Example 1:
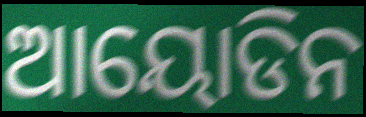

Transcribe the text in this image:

ଆୟୋଡିନ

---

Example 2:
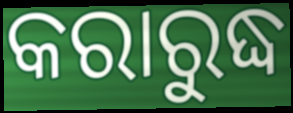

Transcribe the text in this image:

କରାରୁଦ୍ଧ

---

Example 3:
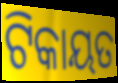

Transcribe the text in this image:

ଟିକାୟତ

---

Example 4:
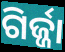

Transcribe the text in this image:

ଗିର୍ଜ୍ଜା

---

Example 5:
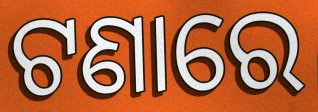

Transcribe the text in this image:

ଟଣାରେ